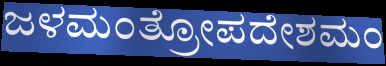
ಜಳಮಂತ್ರೋಪದೇಶಮಂ